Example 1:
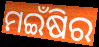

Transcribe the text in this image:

ମଇଁଷିର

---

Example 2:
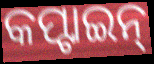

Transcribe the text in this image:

କପ୍ଟାଇନ୍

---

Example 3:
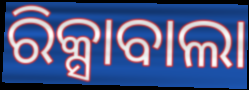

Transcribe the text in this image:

ରିକ୍ସାବାଲା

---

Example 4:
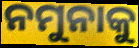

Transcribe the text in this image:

ନମୁନାକୁ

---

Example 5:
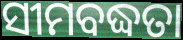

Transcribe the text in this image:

ସୀମବଦ୍ଧତା